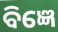
ବିଜ୍ଞେ